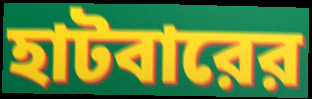
হাটবারের